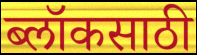
ब्लॉकसाठी